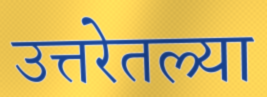
उत्तरेतल्या